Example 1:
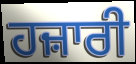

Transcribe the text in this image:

ਹਜ਼ਾਰੀ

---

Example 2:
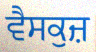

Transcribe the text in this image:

ਵੈਸਕੁਜ਼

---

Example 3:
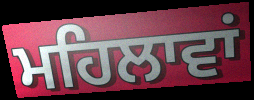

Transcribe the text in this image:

ਮਹਿਲਾਵਾਂ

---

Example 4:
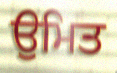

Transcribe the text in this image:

ਉਮਿਤ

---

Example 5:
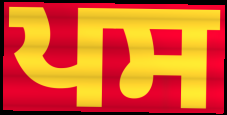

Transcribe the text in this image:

ਪਸ